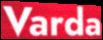
Varda